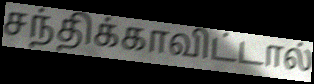
சந்திக்காவிட்டால்